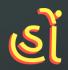
હોં